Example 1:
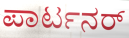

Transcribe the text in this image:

ಪಾರ್ಟನರ್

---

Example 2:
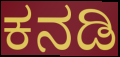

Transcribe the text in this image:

ಕನಡಿ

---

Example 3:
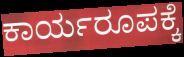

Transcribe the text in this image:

ಕಾರ್ಯರೂಪಕ್ಕೆ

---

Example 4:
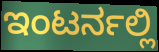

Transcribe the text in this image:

ಇಂಟರ್ನಲ್ಲಿ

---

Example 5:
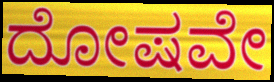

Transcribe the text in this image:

ದೋಷವೇ